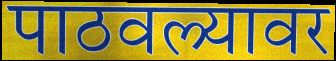
पाठवल्यावर